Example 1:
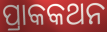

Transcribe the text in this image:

ପ୍ରାକକଥନ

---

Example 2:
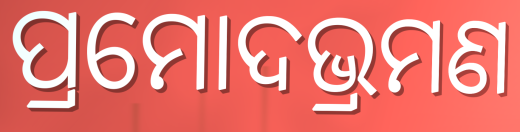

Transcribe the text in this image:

ପ୍ରମୋଦଭ୍ରମଣ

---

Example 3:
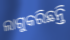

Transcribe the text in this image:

ଲାଗୁକରିଛନ୍ତି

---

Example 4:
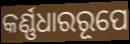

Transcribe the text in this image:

କର୍ଣ୍ଣଧାରରୂପେ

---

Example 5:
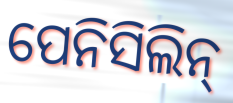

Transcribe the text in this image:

ପେନିସିଲିନ୍